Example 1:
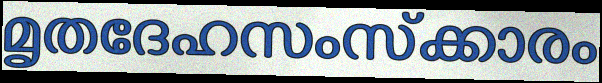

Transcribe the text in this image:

മൃതദേഹസംസ്‌ക്കാരം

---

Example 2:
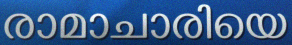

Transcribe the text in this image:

രാമാചാരിയെ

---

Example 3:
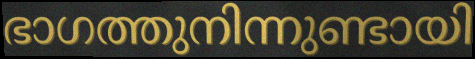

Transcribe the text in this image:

ഭാഗത്തുനിന്നുണ്ടായി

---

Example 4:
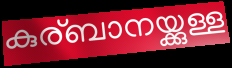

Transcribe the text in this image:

കുര്ബാനയ്ക്കുള്ള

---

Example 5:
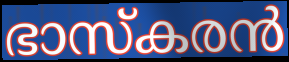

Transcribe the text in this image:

ഭാസ്കരൻ